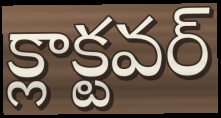
క్లాక్టవర్